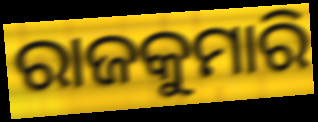
ରାଜକୁମାରି